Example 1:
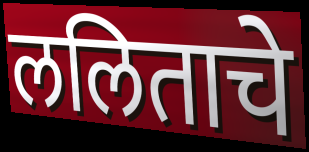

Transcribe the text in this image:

ललिताचे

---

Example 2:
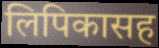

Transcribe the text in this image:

लिपिकासह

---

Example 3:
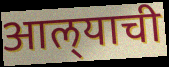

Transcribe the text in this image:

आल्याची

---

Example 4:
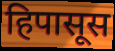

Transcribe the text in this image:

हिपासूस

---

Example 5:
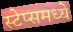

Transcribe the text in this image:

स्टेप्समध्ये